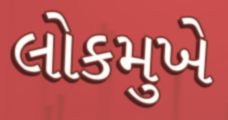
લોકમુખે